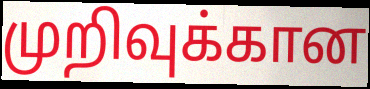
முறிவுக்கான